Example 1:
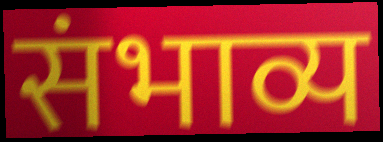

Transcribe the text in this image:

संभाव्य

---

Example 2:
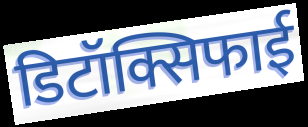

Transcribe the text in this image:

डिटॉक्सिफाई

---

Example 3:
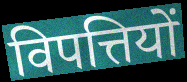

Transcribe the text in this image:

विपत्तियों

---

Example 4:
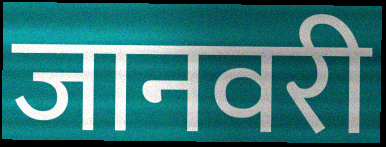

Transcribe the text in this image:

जानवरी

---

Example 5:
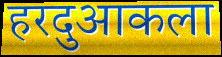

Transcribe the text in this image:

हरदुआकला